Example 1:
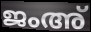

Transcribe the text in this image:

ജംഅ്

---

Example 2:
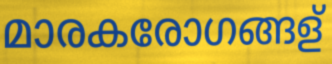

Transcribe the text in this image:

മാരകരോഗങ്ങള്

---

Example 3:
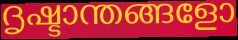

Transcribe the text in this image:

ദൃഷ്ടാന്തങ്ങളോ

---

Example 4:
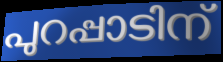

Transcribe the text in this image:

പുറപ്പാടിന്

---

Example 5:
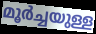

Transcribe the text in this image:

മൂർച്ചയുള്ള